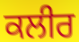
ਕਲੀਰ